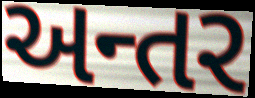
અન્તર